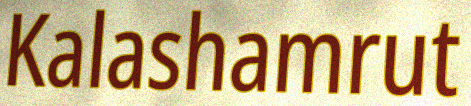
Kalashamrut